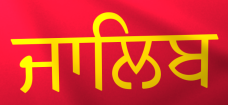
ਜਾਲਿਬ